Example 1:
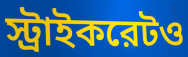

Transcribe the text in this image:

স্ট্রাইকরেটও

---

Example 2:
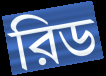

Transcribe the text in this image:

রিড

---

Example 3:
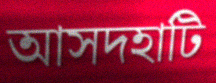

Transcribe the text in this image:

আসদহাটি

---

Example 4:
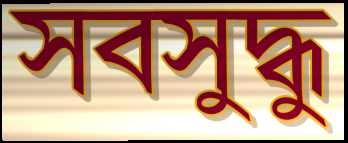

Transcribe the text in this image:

সবসুদ্ধু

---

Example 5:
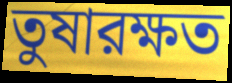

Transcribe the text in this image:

তুষারক্ষত